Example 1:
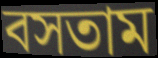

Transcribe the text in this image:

বসতাম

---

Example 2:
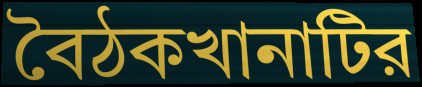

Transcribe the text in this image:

বৈঠকখানাটির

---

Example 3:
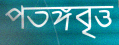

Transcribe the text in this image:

পতঙ্গবৃত্ত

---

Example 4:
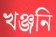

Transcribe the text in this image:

খঞ্জনি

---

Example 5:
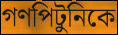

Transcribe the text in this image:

গণপিটুনিকে